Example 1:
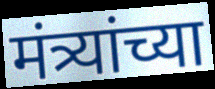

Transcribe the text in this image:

मंत्र्यांच्या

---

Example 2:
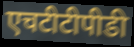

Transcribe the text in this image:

एचटीटीपीडी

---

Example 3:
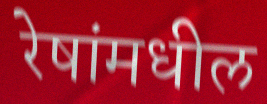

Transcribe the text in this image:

रेषांमधील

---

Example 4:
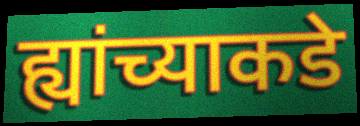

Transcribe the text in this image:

ह्यांच्याकडे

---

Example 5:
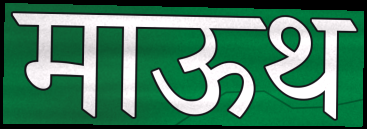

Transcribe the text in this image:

माऊथ